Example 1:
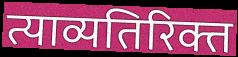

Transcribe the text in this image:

त्याव्यतिरिक्त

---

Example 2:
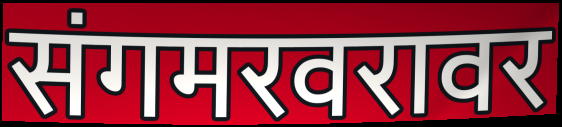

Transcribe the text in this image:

संगमरवरावर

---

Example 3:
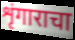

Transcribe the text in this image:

शृंगाराचा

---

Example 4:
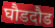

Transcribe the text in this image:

घौडदौड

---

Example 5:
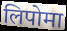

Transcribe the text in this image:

लिपोमा